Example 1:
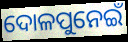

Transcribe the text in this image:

ଦୋଳପୁନେଇଁ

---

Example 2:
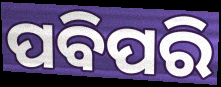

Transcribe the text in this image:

ପବିପରି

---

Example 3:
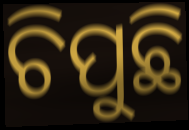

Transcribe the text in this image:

ଚିପୁଛି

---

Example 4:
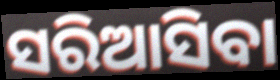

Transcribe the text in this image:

ସରିଆସିବା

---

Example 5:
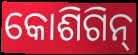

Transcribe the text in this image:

କୋଶିଗିନ୍